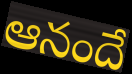
ఆనందే